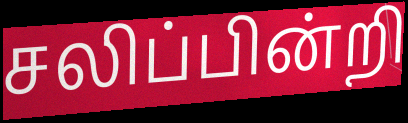
சலிப்பின்றி